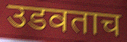
उडवताच